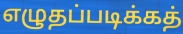
எழுதப்படிக்கத்